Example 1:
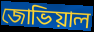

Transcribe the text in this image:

জোভিয়াল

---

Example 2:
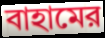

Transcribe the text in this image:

বাহামের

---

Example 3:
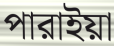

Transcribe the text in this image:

পারাইয়া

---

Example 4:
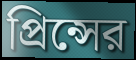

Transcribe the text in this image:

প্রিন্সের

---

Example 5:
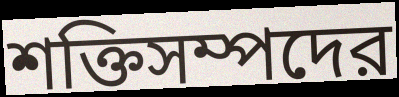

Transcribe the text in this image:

শক্তিসম্পদের